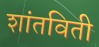
शांतविती